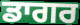
ਡਾਗਰ